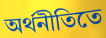
অর্থনীতিতে